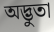
অদ্ভুতা